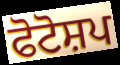
ਫੋਟੋਸ਼ਪ